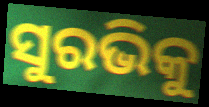
ସୁରଭିକୁ